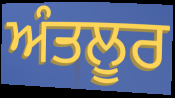
ਅੰਤਲੂਰ